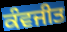
ਕੰਵਜੀਤ